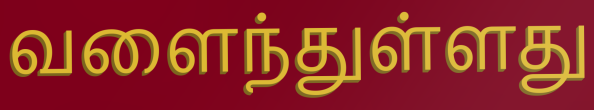
வளைந்துள்ளது